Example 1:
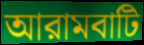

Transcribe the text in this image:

আরামবাটি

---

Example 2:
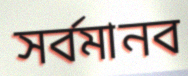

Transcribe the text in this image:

সর্বমানব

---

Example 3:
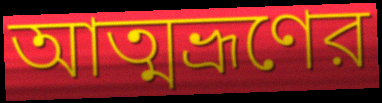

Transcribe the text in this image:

আত্মভ্রূণের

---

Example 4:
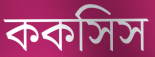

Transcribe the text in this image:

ককসিস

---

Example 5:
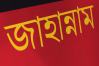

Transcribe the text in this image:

জাহান্নাম